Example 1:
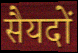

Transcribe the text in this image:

सैयदों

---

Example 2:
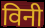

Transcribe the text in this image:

विनी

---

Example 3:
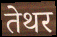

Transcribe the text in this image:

तेथर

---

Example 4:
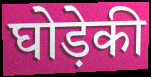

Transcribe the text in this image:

घोड़ेकी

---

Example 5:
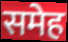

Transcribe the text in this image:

समेह